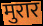
मुरार